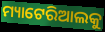
ମ୍ୟାଟେରିଆଲକୁ